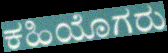
ಕಹಿಯೊಗರು